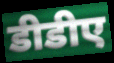
डीडीए